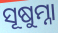
ସୂଷୁମ୍ନା